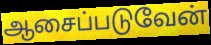
ஆசைப்படுவேன்